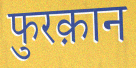
फुरक़ान